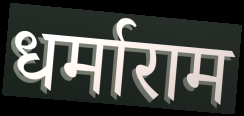
धर्माराम